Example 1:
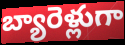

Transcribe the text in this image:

బ్యారెళ్లుగా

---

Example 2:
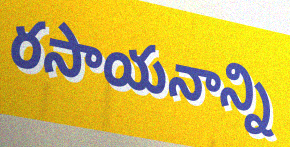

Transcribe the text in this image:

రసాయనాన్ని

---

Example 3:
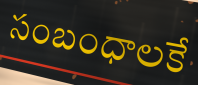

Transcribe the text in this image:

సంబంధాలకే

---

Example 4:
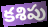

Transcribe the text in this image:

కశిపు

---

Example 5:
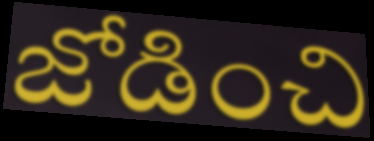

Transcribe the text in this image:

జోడించి